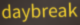
daybreak